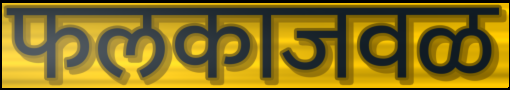
फलकाजवळ